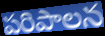
పరిపాలన